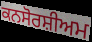
ਕਨਸੋਰਸ਼ੀਅਮ